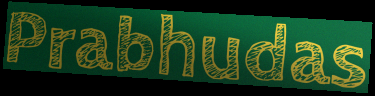
Prabhudas